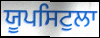
ਯੂਪਸਿਟੁਲਾ